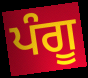
ਪੰਗੂ